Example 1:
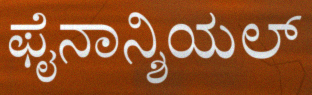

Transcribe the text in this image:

ಫೈನಾನ್ಶಿಯಲ್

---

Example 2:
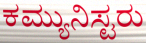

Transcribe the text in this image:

ಕಮ್ಯುನಿಸ್ಟರು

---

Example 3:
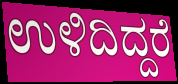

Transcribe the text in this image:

ಉಳಿದಿದ್ದರೆ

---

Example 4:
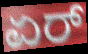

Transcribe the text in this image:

ಏರ್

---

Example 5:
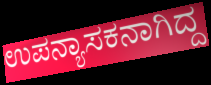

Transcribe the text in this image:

ಉಪನ್ಯಾಸಕನಾಗಿದ್ದ